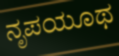
ನೃಪಯೂಥ